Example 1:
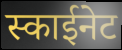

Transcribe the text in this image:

स्काईनेट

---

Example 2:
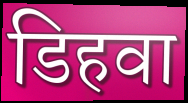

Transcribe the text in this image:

डिहवा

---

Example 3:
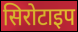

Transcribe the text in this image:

सिरोटाइप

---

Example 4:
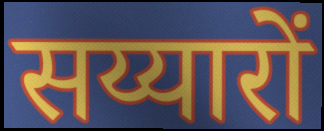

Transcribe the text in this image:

सय्यारों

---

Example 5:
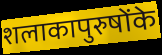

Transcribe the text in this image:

शलाकापुरुषोंके